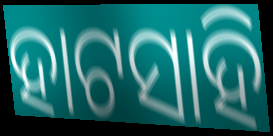
ହାଟସାହି